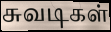
சுவடிகள்